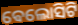
ଵେଲୋସିଟି